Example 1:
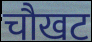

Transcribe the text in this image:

चौखट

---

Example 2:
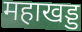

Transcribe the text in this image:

महाखड्ड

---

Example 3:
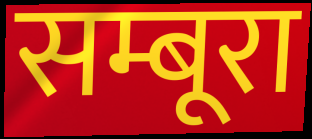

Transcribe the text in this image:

सम्बूरा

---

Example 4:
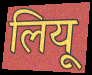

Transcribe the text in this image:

लियू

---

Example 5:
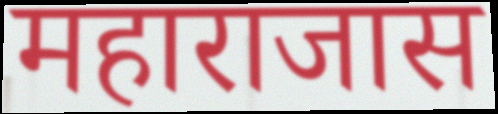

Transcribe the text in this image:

महाराजास